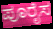
ಪೂರೈಸ